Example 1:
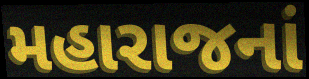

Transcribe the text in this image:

મહારાજનાં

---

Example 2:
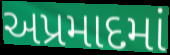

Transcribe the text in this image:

અપ્રમાદમાં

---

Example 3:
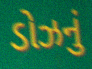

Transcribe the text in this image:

ડોઝનું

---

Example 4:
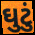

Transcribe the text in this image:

ઘુટું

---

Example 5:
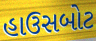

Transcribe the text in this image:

હાઉસબોટ